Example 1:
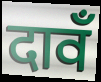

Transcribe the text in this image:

दावँ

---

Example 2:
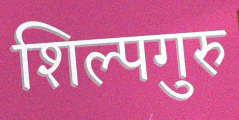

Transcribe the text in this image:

शिल्पगुरु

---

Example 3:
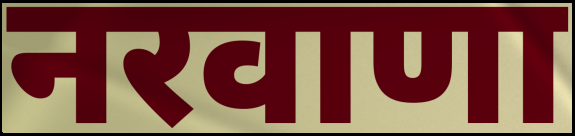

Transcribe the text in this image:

नरवाणा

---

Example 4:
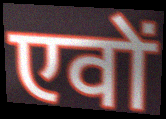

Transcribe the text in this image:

एवों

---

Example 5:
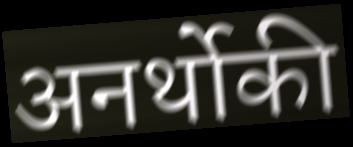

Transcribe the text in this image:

अनर्थोकी